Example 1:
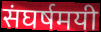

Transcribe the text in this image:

संघर्षमयी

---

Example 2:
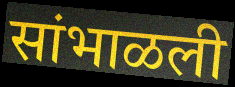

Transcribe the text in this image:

सांभाळली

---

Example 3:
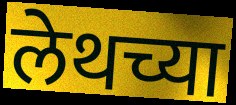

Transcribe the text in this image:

लेथच्या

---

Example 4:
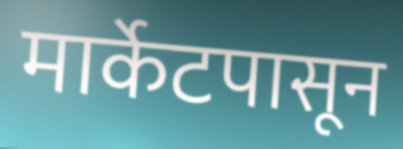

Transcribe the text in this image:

मार्केटपासून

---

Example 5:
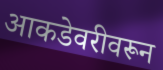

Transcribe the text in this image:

आकडेवरीवरून